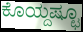
ಕೊಯ್ದಷ್ಟೂ